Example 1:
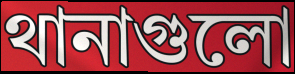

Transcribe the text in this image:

থানাগুলো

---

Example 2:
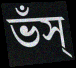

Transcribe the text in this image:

ভঁস্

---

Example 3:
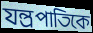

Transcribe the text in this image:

যন্ত্রপাতিকে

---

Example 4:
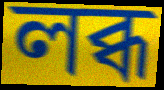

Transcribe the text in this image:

লব্ধ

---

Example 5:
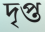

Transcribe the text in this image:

দৃপ্ত